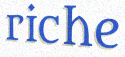
riche